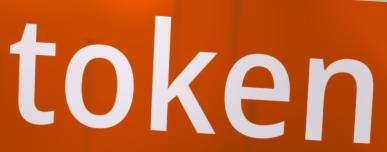
token